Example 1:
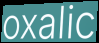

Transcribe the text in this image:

oxalic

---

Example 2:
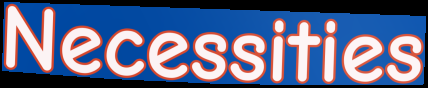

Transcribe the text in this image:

Necessities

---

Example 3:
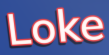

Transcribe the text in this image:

Loke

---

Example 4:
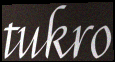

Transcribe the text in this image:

tukro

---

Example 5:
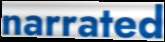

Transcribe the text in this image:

narrated